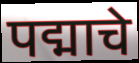
पद्माचे